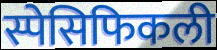
स्पेसिफिकली